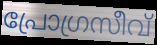
പ്രോഗ്രസീവ്